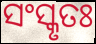
ସଂସ୍କୃତଃ